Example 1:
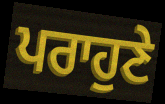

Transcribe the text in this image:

ਪਰਾਹੁਣੇ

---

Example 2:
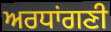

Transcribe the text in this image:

ਅਰਧਾਂਗਣੀ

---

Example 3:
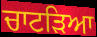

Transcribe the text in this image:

ਚਾਟੜਿਆ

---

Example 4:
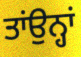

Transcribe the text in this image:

ਤਾਂਉਨ੍ਹਾਂ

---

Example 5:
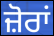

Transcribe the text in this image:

ਜ਼ੋਰਾਂ